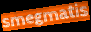
smegmatis